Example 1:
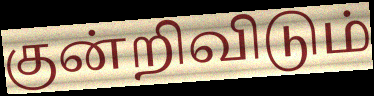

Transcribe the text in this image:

குன்றிவிடும்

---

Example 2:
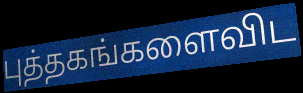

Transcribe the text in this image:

புத்தகங்களைவிட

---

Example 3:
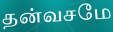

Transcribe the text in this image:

தன்வசமே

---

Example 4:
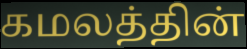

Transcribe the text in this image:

கமலத்தின்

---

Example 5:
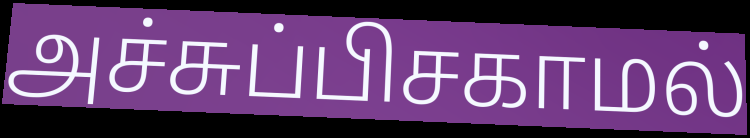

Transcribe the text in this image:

அச்சுப்பிசகாமல்